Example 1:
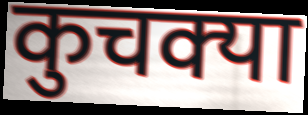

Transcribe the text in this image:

कुचक्या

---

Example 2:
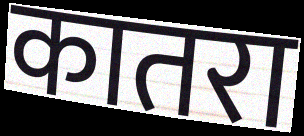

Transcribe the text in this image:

कातरा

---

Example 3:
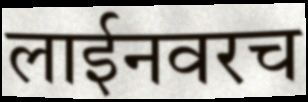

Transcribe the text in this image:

लाईनवरच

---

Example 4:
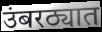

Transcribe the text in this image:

उंबरठ्यात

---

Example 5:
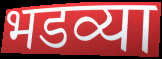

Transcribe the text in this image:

भडव्या